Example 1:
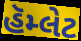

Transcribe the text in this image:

હૅમ્લેટ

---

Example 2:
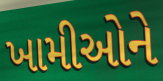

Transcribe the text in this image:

ખામીઓને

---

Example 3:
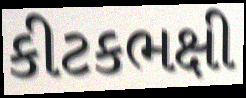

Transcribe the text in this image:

કીટકભક્ષી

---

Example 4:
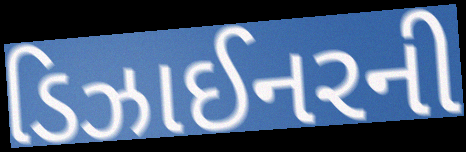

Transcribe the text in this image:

ડિઝાઈનરની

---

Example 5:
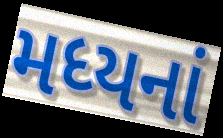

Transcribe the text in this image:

મધ્યનાં